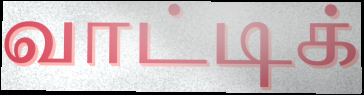
வாட்டிக்